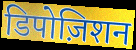
डिपोज़िशन